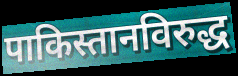
पाकिस्तानविरुद्ध